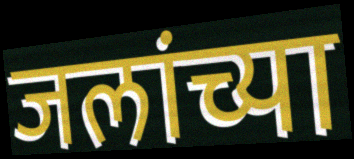
जलांच्या